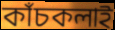
কাঁচকলাই